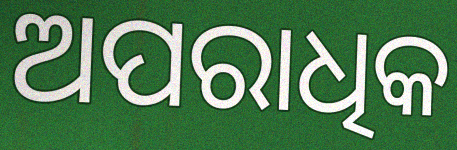
ଅପରାଧିକ